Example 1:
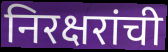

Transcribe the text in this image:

निरक्षरांची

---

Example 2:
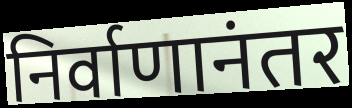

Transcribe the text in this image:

निर्वाणानंतर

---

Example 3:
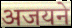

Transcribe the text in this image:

अजयने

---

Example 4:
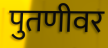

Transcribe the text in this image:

पुतणीवर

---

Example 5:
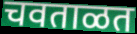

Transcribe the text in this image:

चवताळत